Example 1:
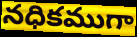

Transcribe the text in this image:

నధికముగా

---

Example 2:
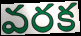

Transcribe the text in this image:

వరక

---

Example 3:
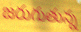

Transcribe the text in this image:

జరుగుతున్న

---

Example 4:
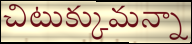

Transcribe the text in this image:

చిటుక్కుమన్నా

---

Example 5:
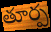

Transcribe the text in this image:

తూర్ప